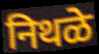
निथळे